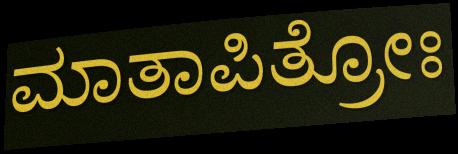
ಮಾತಾಪಿತ್ರೋಃ